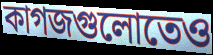
কাগজগুলোতেও